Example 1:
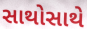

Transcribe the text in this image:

સાથોસાથે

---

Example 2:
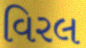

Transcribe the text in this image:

વિરલ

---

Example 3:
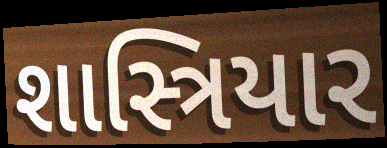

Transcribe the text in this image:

શાસ્ત્રિયાર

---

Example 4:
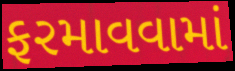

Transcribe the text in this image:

ફરમાવવામાં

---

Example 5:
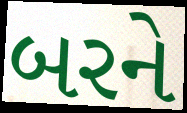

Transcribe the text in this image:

બરને